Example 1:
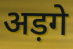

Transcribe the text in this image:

अड़गे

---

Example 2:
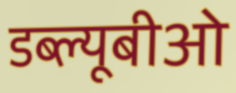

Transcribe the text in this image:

डब्ल्यूबीओ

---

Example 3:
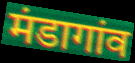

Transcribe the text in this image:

मंडागांव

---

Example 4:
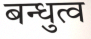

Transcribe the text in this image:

बन्धुत्व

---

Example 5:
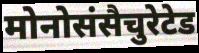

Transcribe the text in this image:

मोनोसंसैचुरेटेड